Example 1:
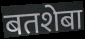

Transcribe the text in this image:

बतशेबा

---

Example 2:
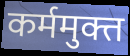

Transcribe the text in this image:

कर्ममुक्त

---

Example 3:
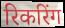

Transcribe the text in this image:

रिकरिंग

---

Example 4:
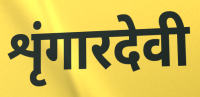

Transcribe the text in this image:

शृंगारदेवी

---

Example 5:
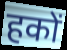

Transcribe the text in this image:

हकों